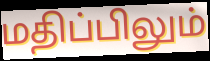
மதிப்பிலும்